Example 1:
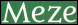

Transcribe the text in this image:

Meze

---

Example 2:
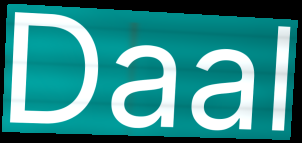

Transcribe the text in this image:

Daal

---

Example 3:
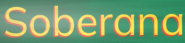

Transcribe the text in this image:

Soberana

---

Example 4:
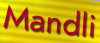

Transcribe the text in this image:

Mandli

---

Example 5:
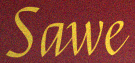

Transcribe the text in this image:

Sawe